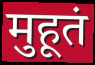
मुहूतं